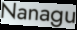
Nanagu